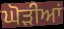
ਘੋੜੀਆਂ